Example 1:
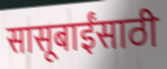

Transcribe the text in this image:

सासूबाईंसाठी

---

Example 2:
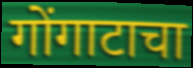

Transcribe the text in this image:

गोंगाटाचा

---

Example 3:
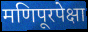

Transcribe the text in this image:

मणिपूरपेक्षा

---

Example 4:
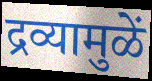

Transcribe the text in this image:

द्रव्यामुळें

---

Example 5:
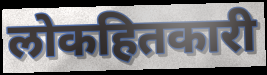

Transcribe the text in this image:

लोकहितकारी